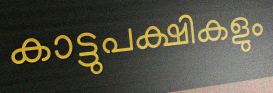
കാട്ടുപക്ഷികളും